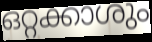
ഒറ്റക്കാശും